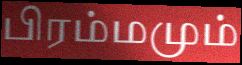
பிரம்மமும்